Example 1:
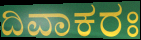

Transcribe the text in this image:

ದಿವಾಕರಃ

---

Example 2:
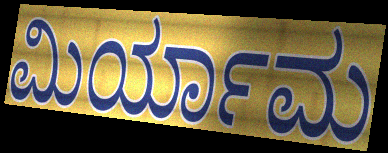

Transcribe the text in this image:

ಮಿರ್ಯಾಮ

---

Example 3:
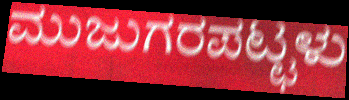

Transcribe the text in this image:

ಮುಜುಗರಪಟ್ಟಳು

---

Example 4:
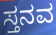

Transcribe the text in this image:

ಸ್ತನವ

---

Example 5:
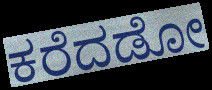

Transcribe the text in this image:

ಕರೆದಡೋ